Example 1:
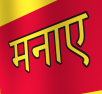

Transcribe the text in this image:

मनाए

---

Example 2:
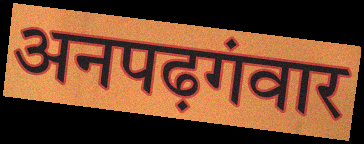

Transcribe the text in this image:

अनपढ़गंवार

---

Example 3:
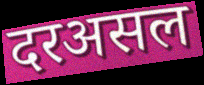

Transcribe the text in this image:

दरअसल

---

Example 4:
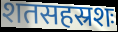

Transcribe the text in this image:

शतसहस्रशः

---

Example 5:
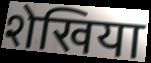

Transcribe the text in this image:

शेखिया